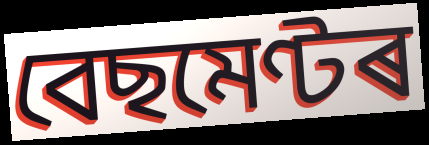
বেছমেণ্টৰ